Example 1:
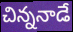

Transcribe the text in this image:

చిన్ననాడే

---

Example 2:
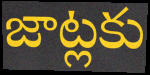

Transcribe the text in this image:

జాట్లకు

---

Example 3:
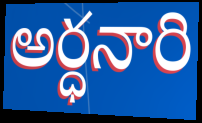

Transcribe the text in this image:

అర్ధనారి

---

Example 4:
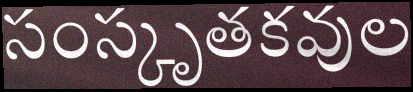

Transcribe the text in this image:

సంస్కృతకవుల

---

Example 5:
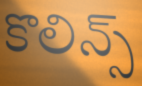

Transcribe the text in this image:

కొలిన్స్